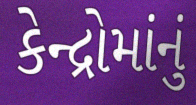
કેન્દ્રોમાંનું